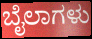
ಬೈಲಾಗಳು